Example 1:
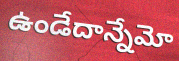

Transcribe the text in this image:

ఉండేదాన్నేమో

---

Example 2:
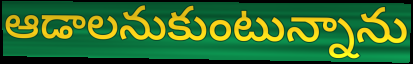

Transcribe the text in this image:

ఆడాలనుకుంటున్నాను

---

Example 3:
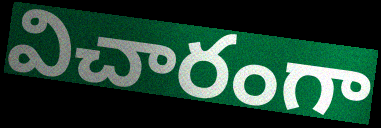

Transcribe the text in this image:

విచారంగా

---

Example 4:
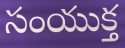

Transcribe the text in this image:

సంయుక్త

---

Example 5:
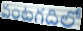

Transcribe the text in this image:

వంటగదిలో